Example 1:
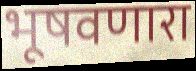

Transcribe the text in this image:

भूषवणारा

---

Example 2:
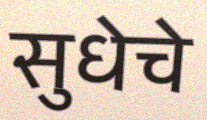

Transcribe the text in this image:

सुधेचे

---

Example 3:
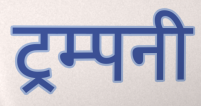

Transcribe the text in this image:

ट्रम्पनी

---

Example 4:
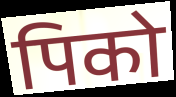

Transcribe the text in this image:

पिको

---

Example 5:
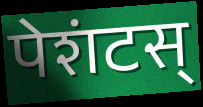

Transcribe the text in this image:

पेशंटस्